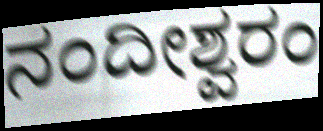
ನಂದೀಶ್ವರಂ